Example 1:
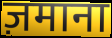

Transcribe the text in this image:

ज़माना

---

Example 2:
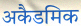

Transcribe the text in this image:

अकैडमिक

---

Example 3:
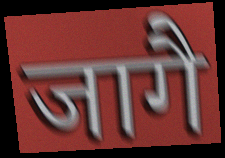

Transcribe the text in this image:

जागै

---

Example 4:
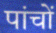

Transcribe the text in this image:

पांचों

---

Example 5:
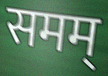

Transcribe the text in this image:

समम्